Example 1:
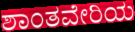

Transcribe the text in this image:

ಶಾಂತವೇರಿಯ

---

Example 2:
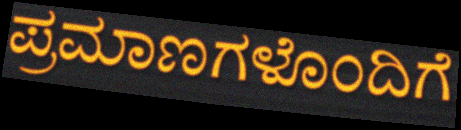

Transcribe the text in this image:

ಪ್ರಮಾಣಗಳೊಂದಿಗೆ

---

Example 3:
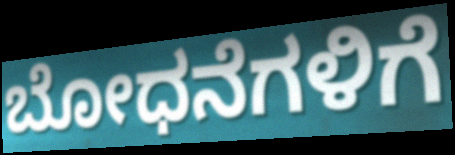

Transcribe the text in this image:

ಬೋಧನೆಗಳಿಗೆ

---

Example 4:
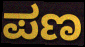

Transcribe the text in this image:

ಪಣ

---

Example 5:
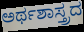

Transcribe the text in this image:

ಅರ್ಥಶಾಸ್ತ್ರದ